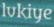
lukiye